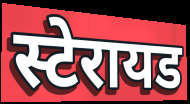
स्टेरायड